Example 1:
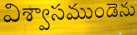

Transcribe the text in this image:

విశ్వాసముండెను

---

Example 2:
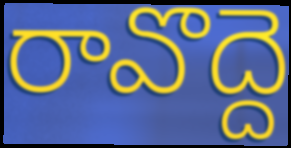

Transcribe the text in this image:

రావొద్దె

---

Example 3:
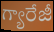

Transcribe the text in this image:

గ్యారేజీ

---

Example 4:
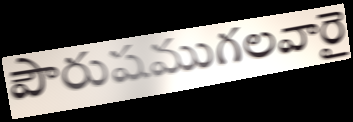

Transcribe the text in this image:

పౌరుషముగలవారై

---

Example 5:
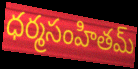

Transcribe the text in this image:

ధర్మసంహితమ్